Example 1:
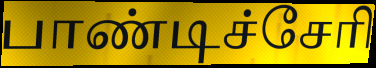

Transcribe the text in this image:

பாண்டிச்சேரி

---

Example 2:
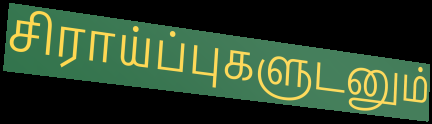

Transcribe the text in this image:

சிராய்ப்புகளுடனும்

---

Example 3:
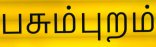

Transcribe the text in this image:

பசும்புறம்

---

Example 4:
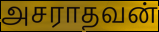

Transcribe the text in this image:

அசராதவன்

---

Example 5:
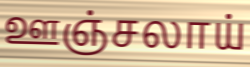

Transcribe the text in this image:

ஊஞ்சலாய்